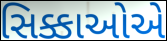
સિક્કાઓએ